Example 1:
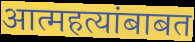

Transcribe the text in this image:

आत्महत्यांबाबत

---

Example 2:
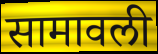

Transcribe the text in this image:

सामावली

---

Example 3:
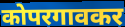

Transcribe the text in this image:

कोपरगावकर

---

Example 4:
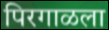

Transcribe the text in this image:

पिरगाळला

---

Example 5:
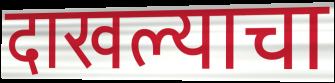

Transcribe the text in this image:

दाखल्याचा